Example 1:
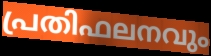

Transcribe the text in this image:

പ്രതിഫലനവും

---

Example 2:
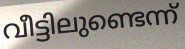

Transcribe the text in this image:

വീട്ടിലുണ്ടെന്ന്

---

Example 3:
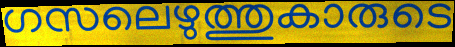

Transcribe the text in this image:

ഗസലെഴുത്തുകാരുടെ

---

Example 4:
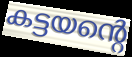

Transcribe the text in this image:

കട്ടയന്റെ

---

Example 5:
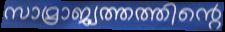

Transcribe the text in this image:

സാമ്രാജ്യത്തത്തിന്റെ